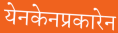
येनकेनप्रकारेन